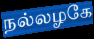
நல்லழகே